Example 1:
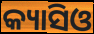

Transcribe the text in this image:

କ୍ୟାସିଓ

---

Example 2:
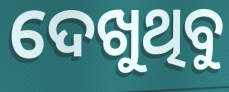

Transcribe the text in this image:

ଦେଖୁଥିବୁ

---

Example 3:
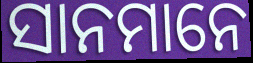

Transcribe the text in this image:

ସାନମାନେ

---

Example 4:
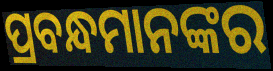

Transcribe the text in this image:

ପ୍ରବନ୍ଧମାନଙ୍କର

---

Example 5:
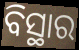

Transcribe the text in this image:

ବିସ୍ଥାର